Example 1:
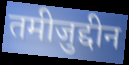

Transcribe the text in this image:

तमीजुद्दीन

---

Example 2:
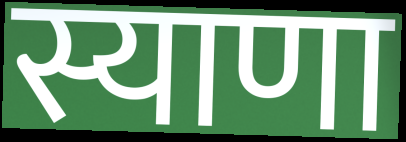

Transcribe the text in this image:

स्याणा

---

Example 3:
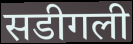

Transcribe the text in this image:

सडीगली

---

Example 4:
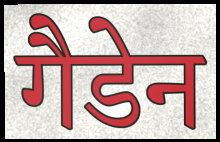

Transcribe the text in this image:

गैडेन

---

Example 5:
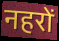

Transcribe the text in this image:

नहरों